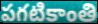
పగటికాంతి